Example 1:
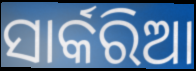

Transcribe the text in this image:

ସାର୍କରିଆ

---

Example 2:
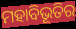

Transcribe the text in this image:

ମହାବିଭୂତିର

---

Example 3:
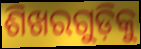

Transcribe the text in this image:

ଶିଖରଗୁଡ଼ିକୁ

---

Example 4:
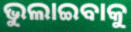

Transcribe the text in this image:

ଭୁଲାଇବାକୁ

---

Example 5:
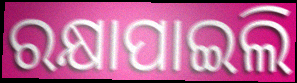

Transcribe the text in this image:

ରକ୍ଷାପାଇଲି